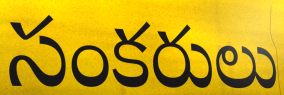
సంకరులు